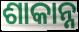
ଶାକାନ୍ନ